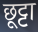
छूट्टा